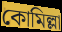
কোমিল্লা